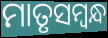
ମାତୃସମ୍ବନ୍ଧ